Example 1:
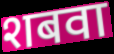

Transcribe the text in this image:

शबवा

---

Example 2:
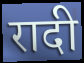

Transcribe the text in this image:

रादी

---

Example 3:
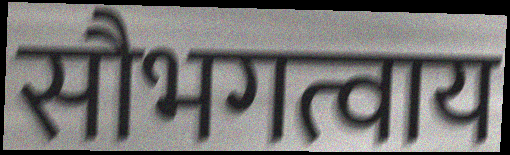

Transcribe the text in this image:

सौभगत्वाय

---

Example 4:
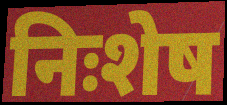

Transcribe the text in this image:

निःशेष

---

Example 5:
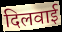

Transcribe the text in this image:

दिलवाई